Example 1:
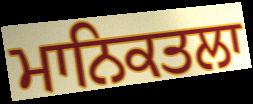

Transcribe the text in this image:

ਮਾਨਿਕਤਲਾ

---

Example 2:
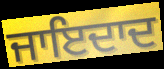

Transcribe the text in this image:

ਜਾਇਦਾਦ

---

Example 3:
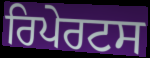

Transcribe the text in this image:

ਰਿਪੇਰਟਸ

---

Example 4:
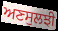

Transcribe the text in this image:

ਅਣਸੁਲਝੀ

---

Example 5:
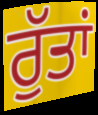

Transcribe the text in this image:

ਰੁੱਤਾਂ